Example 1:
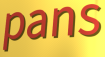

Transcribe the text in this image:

pans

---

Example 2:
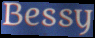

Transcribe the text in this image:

Bessy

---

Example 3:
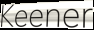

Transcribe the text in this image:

Keener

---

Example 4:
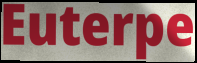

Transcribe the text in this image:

Euterpe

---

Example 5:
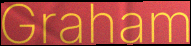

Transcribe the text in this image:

Graham